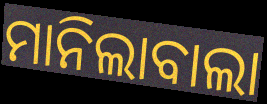
ମାନିଲାବାଲା